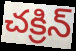
చక్రిన్